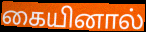
கையினால்